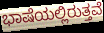
ಭಾಷೆಯಲ್ಲಿರುತ್ತವೆ